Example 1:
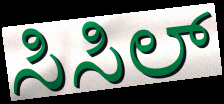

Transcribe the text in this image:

ಸಿಸಿಲ್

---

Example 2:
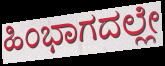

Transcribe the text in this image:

ಹಿಂಭಾಗದಲ್ಲೇ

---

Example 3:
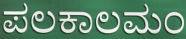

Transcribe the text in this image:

ಪಲಕಾಲಮಂ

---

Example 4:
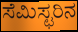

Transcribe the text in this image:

ಸೆಮಿಸ್ಟರಿನ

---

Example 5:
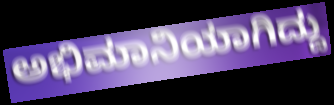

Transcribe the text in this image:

ಅಭಿಮಾನಿಯಾಗಿದ್ದು